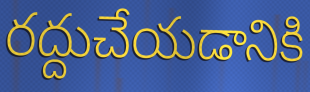
రద్దుచేయడానికి